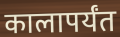
कालापर्यंत